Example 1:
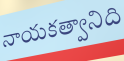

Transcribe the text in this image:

నాయకత్వానిది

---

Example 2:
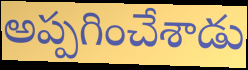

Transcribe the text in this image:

అప్పగించేశాడు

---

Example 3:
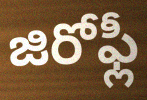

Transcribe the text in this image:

జిరోఫ్లీ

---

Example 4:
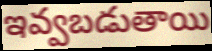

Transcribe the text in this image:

ఇవ్వబడుతాయి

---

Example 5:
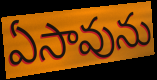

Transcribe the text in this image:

ఏసావును